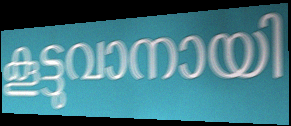
കൂട്ടുവാനായി